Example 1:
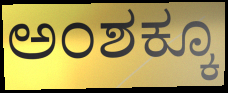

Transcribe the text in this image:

ಅಂಶಕ್ಕೂ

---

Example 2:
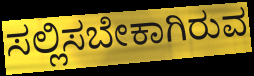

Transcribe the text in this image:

ಸಲ್ಲಿಸಬೇಕಾಗಿರುವ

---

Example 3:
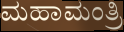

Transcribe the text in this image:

ಮಹಾಮಂತ್ರಿ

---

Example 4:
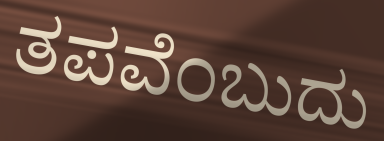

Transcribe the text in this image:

ತಪವೆಂಬುದು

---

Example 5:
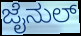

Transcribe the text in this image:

ಜೈನುಲ್